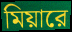
মিয়ারে